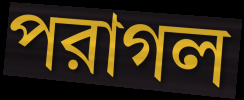
পরাগল